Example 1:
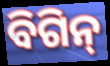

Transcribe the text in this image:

ବିଗିନ୍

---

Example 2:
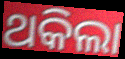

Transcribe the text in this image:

ଥକିଲା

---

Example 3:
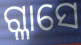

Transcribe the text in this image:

ଗ୍ଳାସେ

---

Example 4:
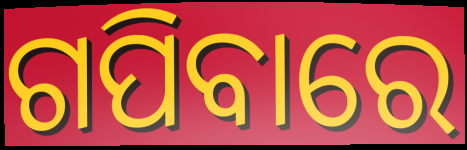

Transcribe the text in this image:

ଗପିବାରେ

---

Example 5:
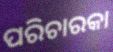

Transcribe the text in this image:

ପରିଚାରକା